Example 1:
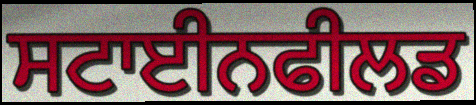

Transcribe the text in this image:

ਸਟਾਈਨਫੀਲਡ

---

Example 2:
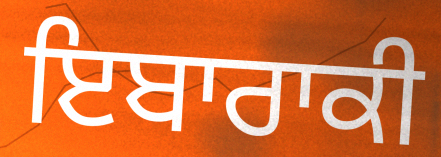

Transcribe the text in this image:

ਇਬਾਰਾਕੀ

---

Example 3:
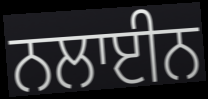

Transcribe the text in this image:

ਨਲਾਈਨ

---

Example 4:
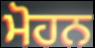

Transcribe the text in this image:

ਮੋਹਨ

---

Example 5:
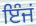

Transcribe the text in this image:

ਇੰਜਂ